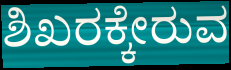
ಶಿಖರಕ್ಕೇರುವ